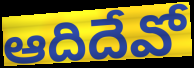
ఆదిదేవో